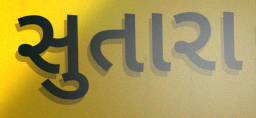
સુતારા